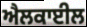
ਐਲਕਾਈਲ